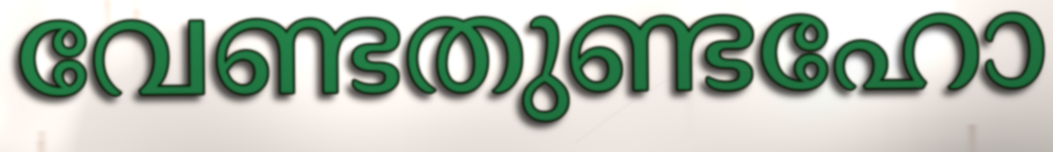
വേണ്ടതുണ്ടഹോ